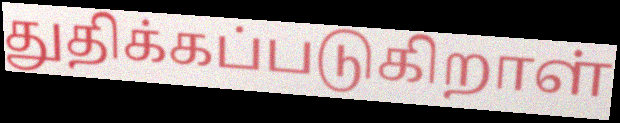
துதிக்கப்படுகிறாள்